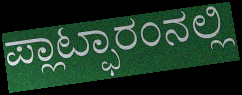
ಪ್ಲಾಟ್ಫಾರಂನಲ್ಲಿ